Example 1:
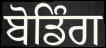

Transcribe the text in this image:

ਬੋਡਿੰਗ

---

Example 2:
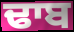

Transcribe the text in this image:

ਢਾਬ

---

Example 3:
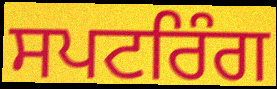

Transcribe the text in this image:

ਸਪਟਰਿੰਗ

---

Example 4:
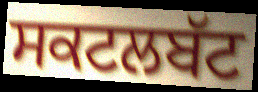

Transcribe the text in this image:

ਸਕਟਲਬੱਟ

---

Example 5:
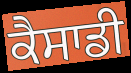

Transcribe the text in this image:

ਕੈਸਾਡੀ